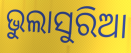
ଭୁଲାସୁରିଆ